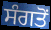
ਸੰਗਤੋਂ